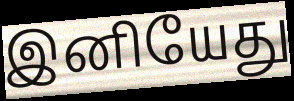
இனியேது